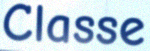
Classe